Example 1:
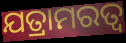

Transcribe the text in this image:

ଯତ୍ରାମରତ୍ଵ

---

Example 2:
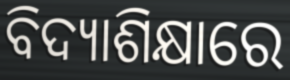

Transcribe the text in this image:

ବିଦ୍ୟାଶିକ୍ଷାରେ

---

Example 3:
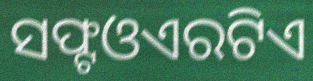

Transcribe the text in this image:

ସଫ୍ଟଓଏରଟିଏ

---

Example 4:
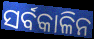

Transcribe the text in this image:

ସର୍ବକାଳିନ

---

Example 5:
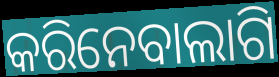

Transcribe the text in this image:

କରିନେବାଲାଗି